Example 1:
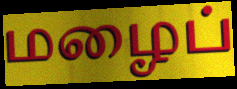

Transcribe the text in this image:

மழைப்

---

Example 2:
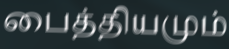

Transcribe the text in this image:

பைத்தியமும்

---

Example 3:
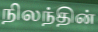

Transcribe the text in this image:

நிலந்தின்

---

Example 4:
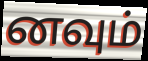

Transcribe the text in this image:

னவும்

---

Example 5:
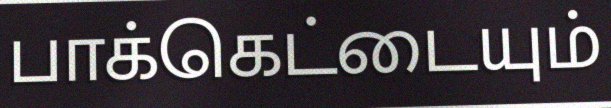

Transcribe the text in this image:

பாக்கெட்டையும்